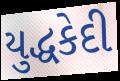
યુદ્ધકેદી